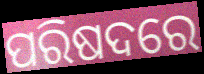
ପରିଷଦରେ